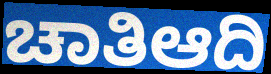
ಚಾತಿಆದಿ